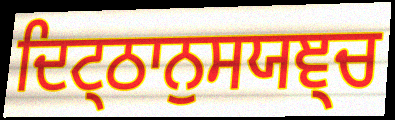
ਦਿਟ੍ਠਾਨੁਸਯਞ੍ਚ